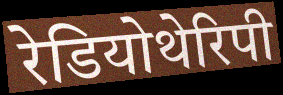
रेडियोथेरिपी